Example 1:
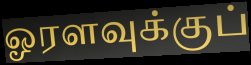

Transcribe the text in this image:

ஓரளவுக்குப்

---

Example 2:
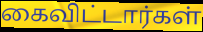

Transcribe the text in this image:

கைவிட்டார்கள்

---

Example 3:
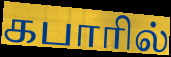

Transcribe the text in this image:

கபாரில்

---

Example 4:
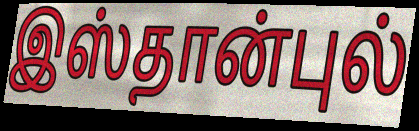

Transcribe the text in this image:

இஸ்தான்புல்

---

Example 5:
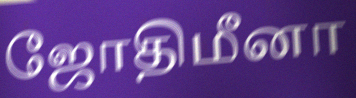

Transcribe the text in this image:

ஜோதிமீனா